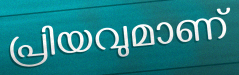
പ്രിയവുമാണ്